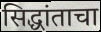
सिद्धांताचा